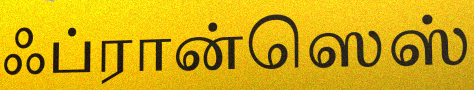
ஃப்ரான்ஸெஸ்